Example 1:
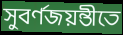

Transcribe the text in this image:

সুবর্ণজয়ন্তীতে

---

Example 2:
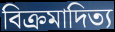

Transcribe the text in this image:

বিক্রমাদিত্য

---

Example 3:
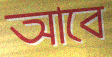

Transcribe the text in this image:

আবে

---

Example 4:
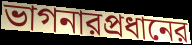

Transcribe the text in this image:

ভাগনারপ্রধানের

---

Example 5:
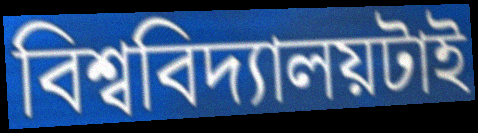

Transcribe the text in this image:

বিশ্ববিদ্যালয়টাই